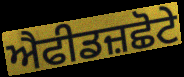
ਐਫੀਡਜ਼ਛੋਟੇ